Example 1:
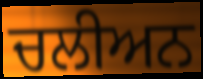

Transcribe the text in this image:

ਚਲੀਅਨ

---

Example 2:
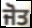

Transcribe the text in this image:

ਜੋਤ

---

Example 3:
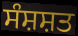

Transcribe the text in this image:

ਸੰਸ਼ਸ਼ਤ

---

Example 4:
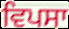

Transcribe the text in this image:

ਵਿਪਸਾ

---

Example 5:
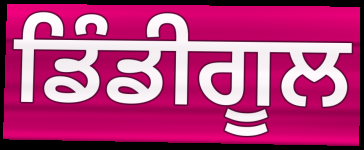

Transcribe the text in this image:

ਡਿੰਡੀਗੂਲ